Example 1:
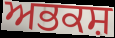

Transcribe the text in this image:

ਅਭਕਸ਼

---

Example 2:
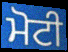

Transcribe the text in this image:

ਮੋਟੀ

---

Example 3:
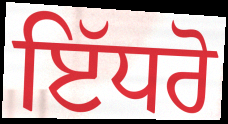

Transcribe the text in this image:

ਇੱਧਰੋ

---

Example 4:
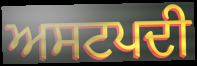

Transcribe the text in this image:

ਅਸਟਪਦੀ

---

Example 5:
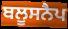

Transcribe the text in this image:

ਬਲੂਸਨੈਪ